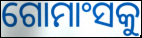
ଗୋମାଂସକୁ